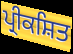
ਪ੍ਰੀਕਸ਼ਿਤ